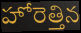
హోరెత్తిన